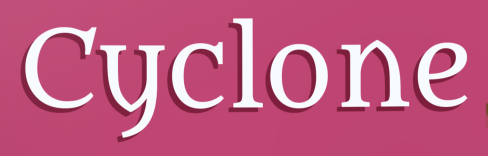
Cyclone